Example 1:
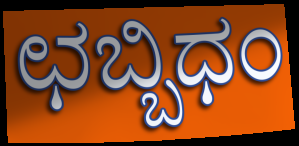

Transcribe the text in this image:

ಛಬ್ಬಿಧಂ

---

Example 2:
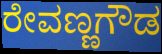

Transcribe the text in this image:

ರೇವಣ್ಣಗೌಡ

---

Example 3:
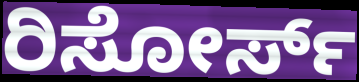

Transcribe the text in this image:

ರಿಸೋರ್ಸ್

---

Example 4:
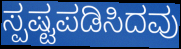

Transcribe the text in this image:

ಸ್ಪಷ್ಟಪಡಿಸಿದವು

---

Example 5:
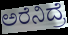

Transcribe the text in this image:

ಅರೆನಿದ್ರೆ